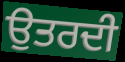
ਉਤਰਦੀ